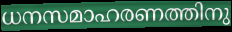
ധനസമാഹരണത്തിനു